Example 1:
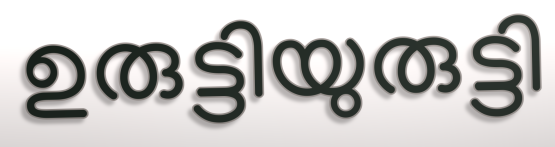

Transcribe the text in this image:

ഉരുട്ടിയുരുട്ടി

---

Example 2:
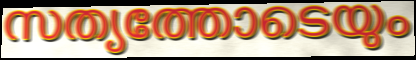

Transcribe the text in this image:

സത്യത്തോടെയും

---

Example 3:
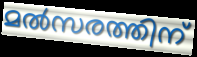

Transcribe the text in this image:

മൽസരത്തിന്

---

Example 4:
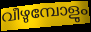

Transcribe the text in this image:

വീഴുമ്പോളും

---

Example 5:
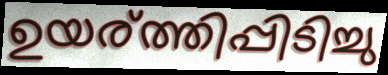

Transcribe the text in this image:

ഉയര്ത്തിപ്പിടിച്ചു